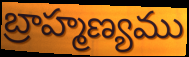
బ్రాహ్మణ్యము